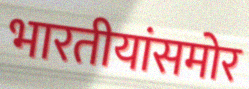
भारतीयांसमोर